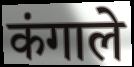
कंगाले